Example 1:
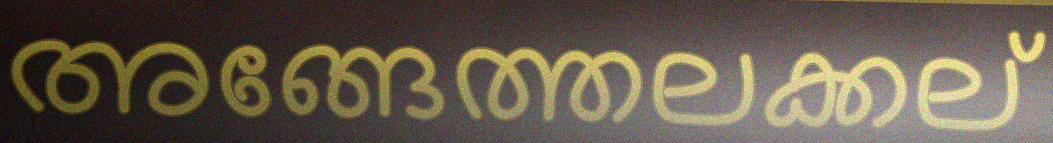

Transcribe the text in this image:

അങ്ങേത്തലക്കല്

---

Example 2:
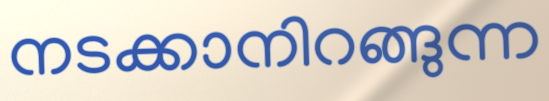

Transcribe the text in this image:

നടക്കാനിറങ്ങുന്ന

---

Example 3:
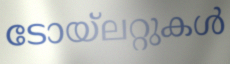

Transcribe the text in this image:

ടോയ്ലറ്റുകൾ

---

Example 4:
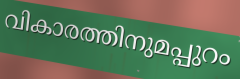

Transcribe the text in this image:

വികാരത്തിനുമപ്പുറം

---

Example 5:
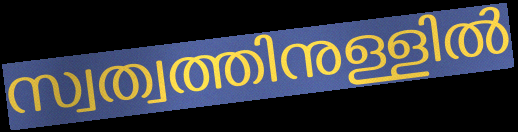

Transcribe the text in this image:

സ്വത്വത്തിനുള്ളിൽ